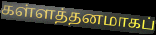
கள்ளத்தனமாகப்